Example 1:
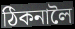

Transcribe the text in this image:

ঠিকনালৈ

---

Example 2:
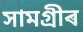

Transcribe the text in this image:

সামগ্ৰীৰ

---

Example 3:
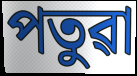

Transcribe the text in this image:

পতুৱা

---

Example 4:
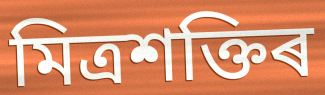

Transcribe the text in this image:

মিত্ৰশক্তিৰ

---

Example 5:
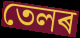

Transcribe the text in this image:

তেলৰ